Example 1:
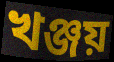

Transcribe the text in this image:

খঞ্জয়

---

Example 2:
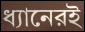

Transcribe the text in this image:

ধ্যানেরই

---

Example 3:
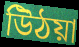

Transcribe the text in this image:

উিঠয়া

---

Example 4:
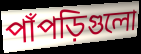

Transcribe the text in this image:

পাঁপড়িগুলো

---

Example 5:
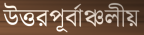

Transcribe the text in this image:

উত্তরপূর্বাঞ্চলীয়